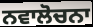
ਨਵਾਲੋਚਨਾ